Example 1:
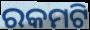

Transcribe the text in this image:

ରକମଟି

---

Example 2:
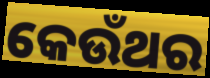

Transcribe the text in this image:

କେଉଁଥର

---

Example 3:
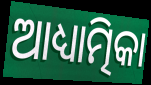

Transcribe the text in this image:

ଆଧ୍ୟାତ୍ମିକା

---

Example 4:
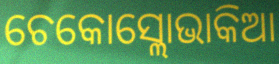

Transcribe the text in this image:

ଚେକୋସ୍ଲୋଭାକିଆ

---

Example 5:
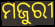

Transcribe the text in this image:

ମଜୁରୀ